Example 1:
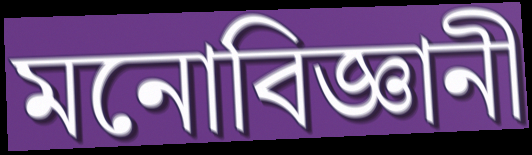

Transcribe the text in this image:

মনোবিজ্ঞানী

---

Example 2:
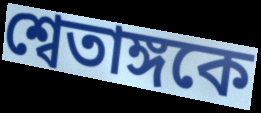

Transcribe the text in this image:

শ্বেতাঙ্গকে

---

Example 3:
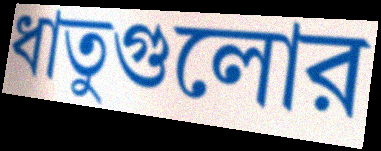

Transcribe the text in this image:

ধাতুগুলোর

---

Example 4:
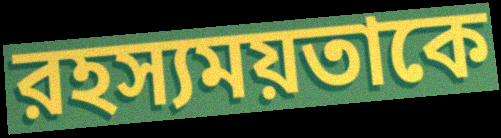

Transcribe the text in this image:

রহস্যময়তাকে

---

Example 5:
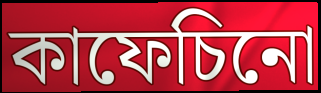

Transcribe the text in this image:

কাফেচিনো